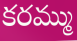
కరమ్ము